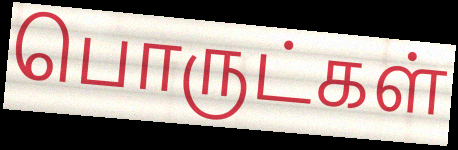
பொருட்கள்